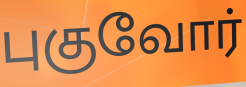
புகுவோர்